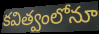
కవిత్వంలోనూ